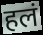
हलं